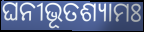
ଘନୀଭୂତଶ୍ୟାମଃ